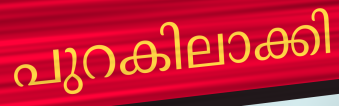
പുറകിലാക്കി